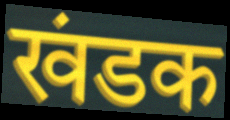
खंडक